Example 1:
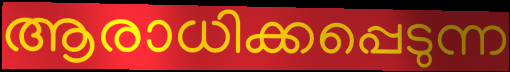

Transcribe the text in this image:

ആരാധിക്കപ്പെടുന്ന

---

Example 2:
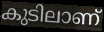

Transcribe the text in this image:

കുടിലാണ്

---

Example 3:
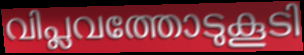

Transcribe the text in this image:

വിപ്ലവത്തോടുകൂടി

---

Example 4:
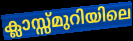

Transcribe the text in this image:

ക്ലാസ്സ്മുറിയിലെ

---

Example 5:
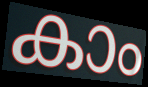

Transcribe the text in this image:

കാം